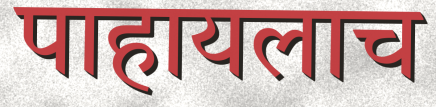
पाहायलाच